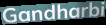
Gandharbi